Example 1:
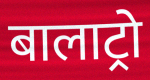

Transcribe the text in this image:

बालाट्रो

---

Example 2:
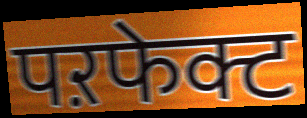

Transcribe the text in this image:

पऱफेक्ट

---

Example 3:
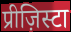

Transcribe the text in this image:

प्रीज़िस्टा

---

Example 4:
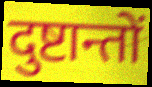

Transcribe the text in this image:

दुष्टान्तों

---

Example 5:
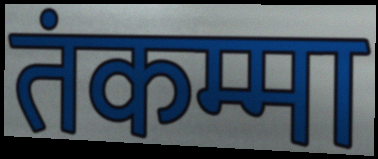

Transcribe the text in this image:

तंकम्मा